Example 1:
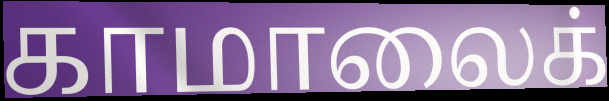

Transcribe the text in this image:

காமாலைக்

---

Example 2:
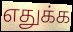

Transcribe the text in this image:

எதுக்க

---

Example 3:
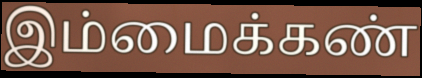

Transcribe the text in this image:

இம்மைக்கண்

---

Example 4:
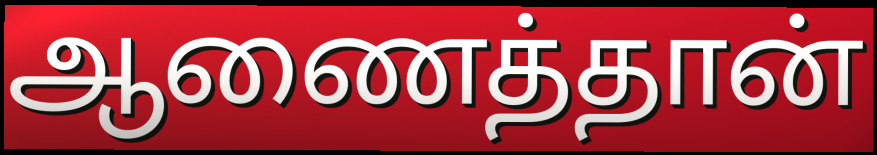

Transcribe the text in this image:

ஆணைத்தான்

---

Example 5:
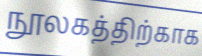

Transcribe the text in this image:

நூலகத்திற்காக